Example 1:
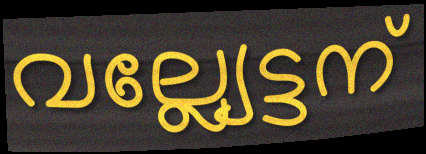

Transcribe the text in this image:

വല്ല്യേട്ടന്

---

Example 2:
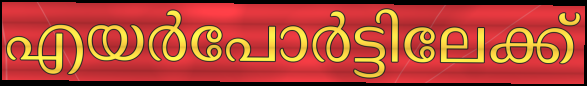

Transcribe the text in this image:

എയർപോർട്ടിലേക്ക്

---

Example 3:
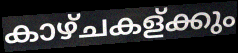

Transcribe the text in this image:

കാഴ്ചകള്ക്കും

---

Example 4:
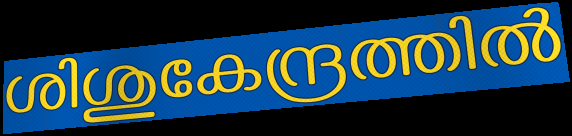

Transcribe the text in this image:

ശിശുകേന്ദ്രത്തിൽ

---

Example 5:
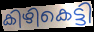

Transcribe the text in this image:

കിഴികെട്ടി